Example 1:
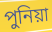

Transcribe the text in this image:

পুনিয়া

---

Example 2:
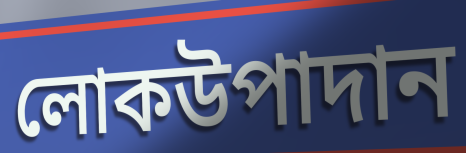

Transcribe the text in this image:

লোকউপাদান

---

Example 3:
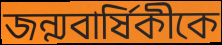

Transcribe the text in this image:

জন্মবার্ষিকীকে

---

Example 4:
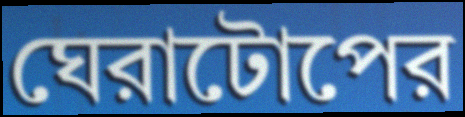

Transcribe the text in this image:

ঘেরাটোপের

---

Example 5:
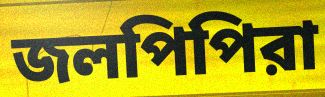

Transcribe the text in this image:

জলপিপিরা